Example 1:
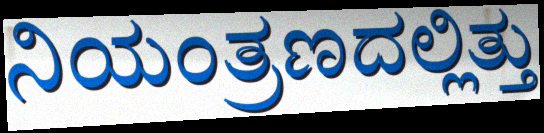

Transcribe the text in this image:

ನಿಯಂತ್ರಣದಲ್ಲಿತ್ತು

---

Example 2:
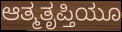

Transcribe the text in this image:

ಆತ್ಮತೃಪ್ತಿಯೂ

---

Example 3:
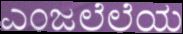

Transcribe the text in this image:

ಎಂಜಲೆಲೆಯ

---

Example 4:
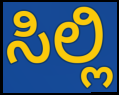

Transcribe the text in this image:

ಸಿಲ್ಲಿ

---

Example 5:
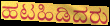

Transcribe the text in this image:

ಹಟಹಿಡಿದರು